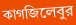
কাগজিলেবুর